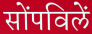
सोंपविलें